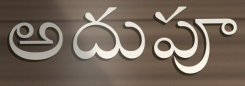
అదుపూ